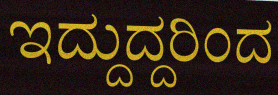
ಇದ್ದುದ್ದರಿಂದ